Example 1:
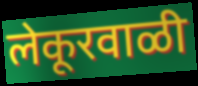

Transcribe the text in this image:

लेकूरवाळी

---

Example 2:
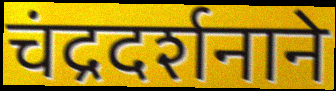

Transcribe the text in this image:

चंद्रदर्शनाने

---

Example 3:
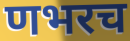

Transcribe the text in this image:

णभरच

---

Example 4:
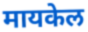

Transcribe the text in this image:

मायकेल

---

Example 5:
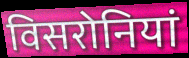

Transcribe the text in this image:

विसरोनियां